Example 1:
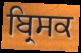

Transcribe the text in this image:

ਬ੍ਰਿਸਕ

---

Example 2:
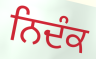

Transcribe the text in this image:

ਨਿਦੰਕ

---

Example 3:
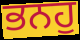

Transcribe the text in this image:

ਭਨਹੁ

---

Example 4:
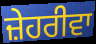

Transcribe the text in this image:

ਜ਼ੇਹਰੀਵਾ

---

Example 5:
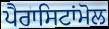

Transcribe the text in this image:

ਪੈਰਾਸਿਟਾਂਮੋਲ